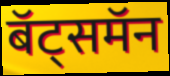
बॅट्समॅन